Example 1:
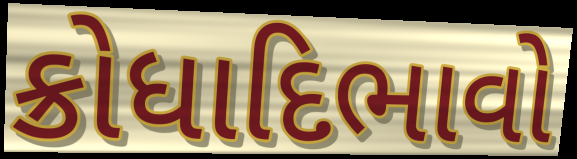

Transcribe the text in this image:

ક્રોધાદિભાવો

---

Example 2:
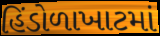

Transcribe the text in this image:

હિંડોળાખાટમાં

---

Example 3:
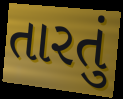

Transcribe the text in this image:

તારતું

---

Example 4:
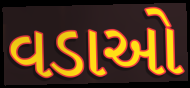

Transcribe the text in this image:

વડાઓ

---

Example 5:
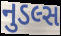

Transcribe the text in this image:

નુડલ્સ